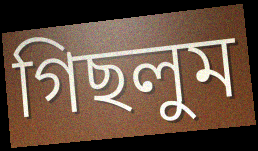
গিছলুম